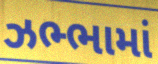
ઝભ્ભામાં